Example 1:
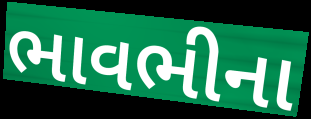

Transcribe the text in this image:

ભાવભીના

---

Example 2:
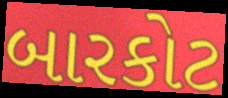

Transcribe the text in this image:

બારકોટ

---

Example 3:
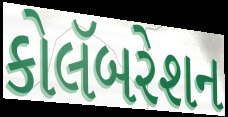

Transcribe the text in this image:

કોલૅબરેશન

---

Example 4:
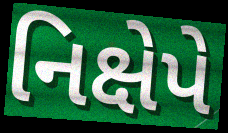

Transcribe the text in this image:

નિક્ષેપે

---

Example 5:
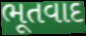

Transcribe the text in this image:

ભૂતવાદ